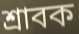
শ্রাবক